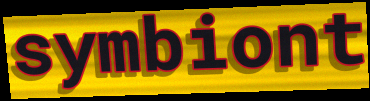
symbiont